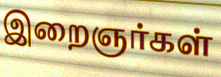
இறைஞர்கள்